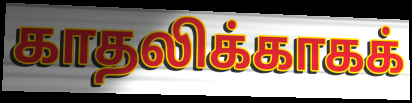
காதலிக்காகக்